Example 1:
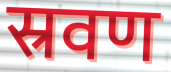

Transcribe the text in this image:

स्रवण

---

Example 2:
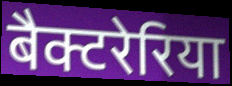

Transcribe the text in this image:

बैक्टरेरिया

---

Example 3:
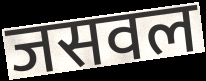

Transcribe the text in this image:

जसवल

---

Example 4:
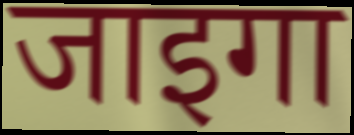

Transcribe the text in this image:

जाइगा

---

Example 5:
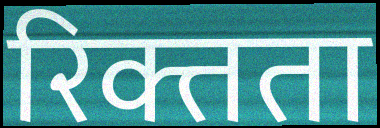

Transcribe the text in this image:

रिक्तता